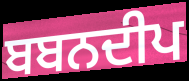
ਬਬਨਦੀਪ